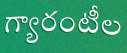
గ్యారంటీల